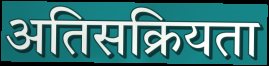
अतिसक्रियता